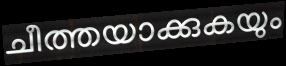
ചീത്തയാക്കുകയും